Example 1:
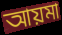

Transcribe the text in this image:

আয়মা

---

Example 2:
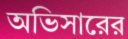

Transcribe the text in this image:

অভিসারের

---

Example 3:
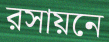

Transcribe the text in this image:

রসায়নে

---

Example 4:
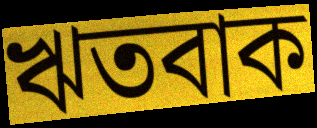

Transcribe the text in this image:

ঋতবাক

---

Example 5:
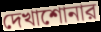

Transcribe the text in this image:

দেখাশোনার